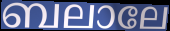
ബലാലേ